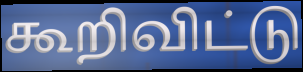
கூறிவிட்டு